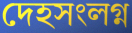
দেহসংলগ্ন